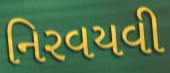
નિરવયવી